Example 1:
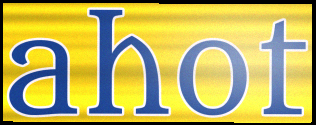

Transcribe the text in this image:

ahot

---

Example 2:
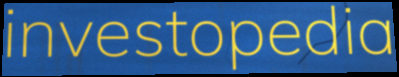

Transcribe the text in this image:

investopedia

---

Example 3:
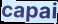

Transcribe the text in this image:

capai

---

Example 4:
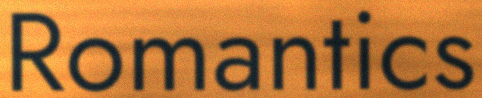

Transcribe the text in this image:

Romantics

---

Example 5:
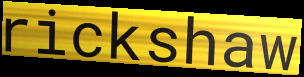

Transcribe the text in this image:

rickshaw